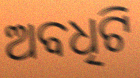
ଅବଧିଟି